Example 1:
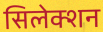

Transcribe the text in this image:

सिलेक्शन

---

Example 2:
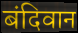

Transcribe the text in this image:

बंदिवान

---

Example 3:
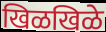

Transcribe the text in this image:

खिळखिळे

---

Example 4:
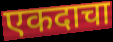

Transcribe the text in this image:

एकदाचा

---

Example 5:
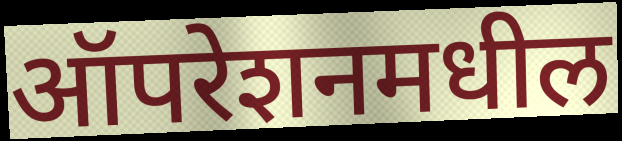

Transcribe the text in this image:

ऑपरेशनमधील